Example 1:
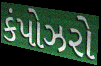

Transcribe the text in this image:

કંપોઝરો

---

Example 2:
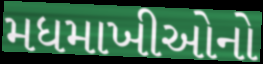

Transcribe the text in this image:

મધમાખીઓનો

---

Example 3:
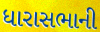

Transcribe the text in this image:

ધારાસભાની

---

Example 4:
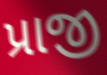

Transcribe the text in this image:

પ્રાજી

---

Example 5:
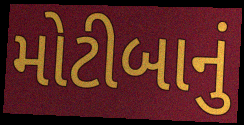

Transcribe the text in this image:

મોટીબાનું